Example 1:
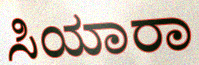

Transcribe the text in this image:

ಸಿಯಾರಾ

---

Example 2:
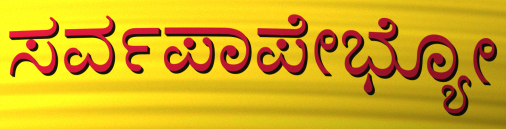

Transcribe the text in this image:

ಸರ್ವಪಾಪೇಭ್ಯೋ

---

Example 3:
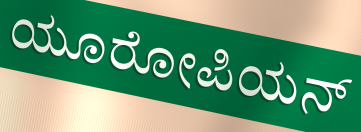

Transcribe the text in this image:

ಯೂರೋಪಿಯನ್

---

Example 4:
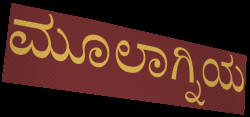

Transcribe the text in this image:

ಮೂಲಾಗ್ನಿಯ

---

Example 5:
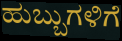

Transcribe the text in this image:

ಹುಬ್ಬುಗಳಿಗೆ